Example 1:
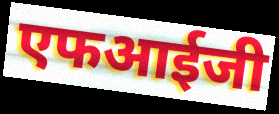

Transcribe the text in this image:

एफआईजी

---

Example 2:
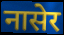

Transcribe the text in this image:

नासेर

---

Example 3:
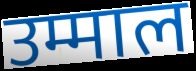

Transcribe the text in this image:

उम्माल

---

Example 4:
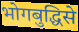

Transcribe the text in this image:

भोगबुद्धिसे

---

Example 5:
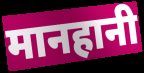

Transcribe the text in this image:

मानहानी